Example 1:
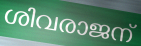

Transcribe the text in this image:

ശിവരാജന്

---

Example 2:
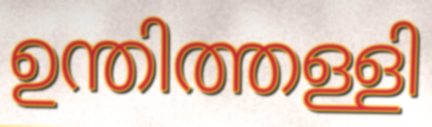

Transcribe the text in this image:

ഉന്തിത്തള്ളി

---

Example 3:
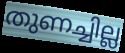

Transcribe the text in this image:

തുണച്ചില്ല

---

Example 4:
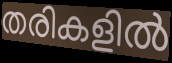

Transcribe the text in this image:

തരികളിൽ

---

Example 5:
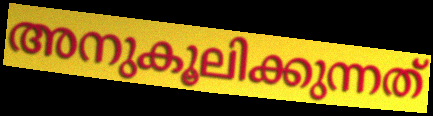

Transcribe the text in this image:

അനുകൂലിക്കുന്നത്